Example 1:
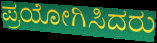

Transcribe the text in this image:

ಪ್ರಯೋಗಿಸಿದರು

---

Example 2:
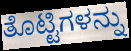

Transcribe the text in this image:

ತೊಟ್ಟಿಗಳನ್ನು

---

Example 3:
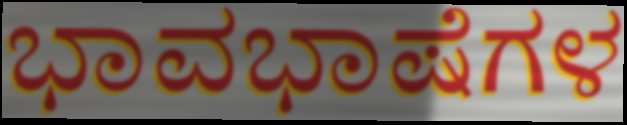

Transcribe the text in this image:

ಭಾವಭಾಷೆಗಳ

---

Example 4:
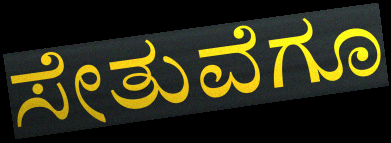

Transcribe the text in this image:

ಸೇತುವೆಗೂ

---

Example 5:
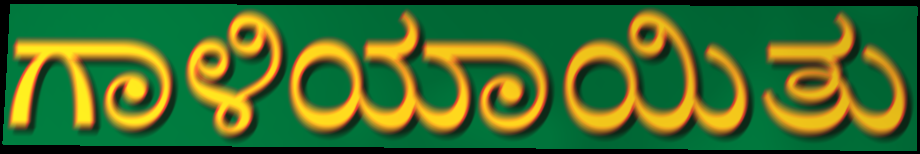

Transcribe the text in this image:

ಗಾಳಿಯಾಯಿತು